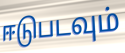
ஈடுபடவும்